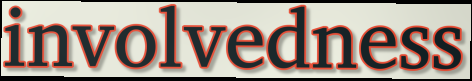
involvedness